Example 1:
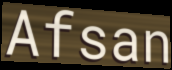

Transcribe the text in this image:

Afsan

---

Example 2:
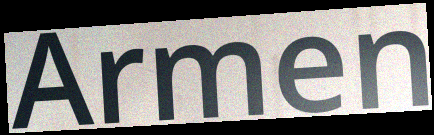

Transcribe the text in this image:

Armen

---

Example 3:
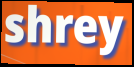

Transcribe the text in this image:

shrey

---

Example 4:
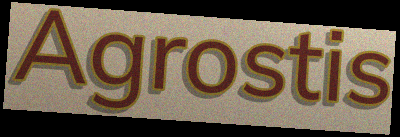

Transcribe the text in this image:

Agrostis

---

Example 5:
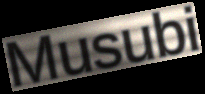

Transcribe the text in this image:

Musubi